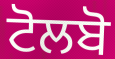
ਟੋਲਬੋ